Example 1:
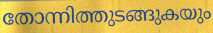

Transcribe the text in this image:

തോന്നിത്തുടങ്ങുകയും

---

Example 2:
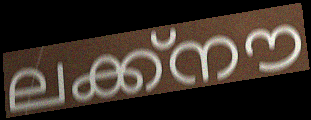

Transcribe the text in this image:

ലക്ക്നൗ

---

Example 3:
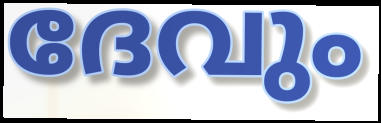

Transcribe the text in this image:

ദേവും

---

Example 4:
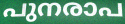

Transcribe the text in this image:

പുനരാപ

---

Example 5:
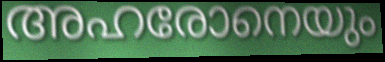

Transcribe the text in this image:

അഹരോനെയും